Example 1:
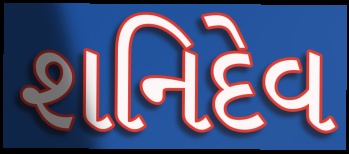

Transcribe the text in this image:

શનિદેવ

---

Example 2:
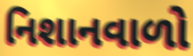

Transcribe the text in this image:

નિશાનવાળો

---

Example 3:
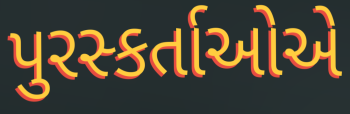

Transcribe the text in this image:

પુરસ્કર્તાઓએ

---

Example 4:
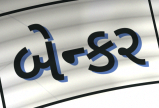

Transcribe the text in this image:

બેન્કર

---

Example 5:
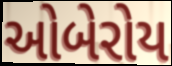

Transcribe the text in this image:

ઓબેરોય